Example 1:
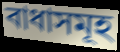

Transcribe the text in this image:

বাধাসমূহ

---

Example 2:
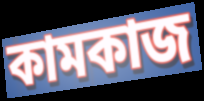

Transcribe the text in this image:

কামকাজ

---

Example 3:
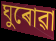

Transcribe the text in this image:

ঘুৰোৱা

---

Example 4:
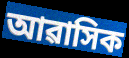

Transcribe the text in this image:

আৱাসিক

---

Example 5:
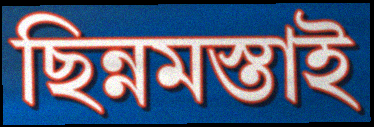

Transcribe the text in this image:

ছিন্নমস্তাই